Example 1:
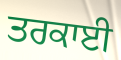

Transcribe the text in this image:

ਤਰਕਾਈ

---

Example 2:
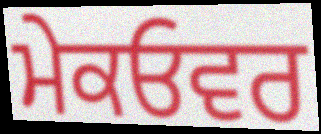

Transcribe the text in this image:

ਮੇਕਓਵਰ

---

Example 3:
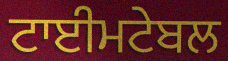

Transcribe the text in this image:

ਟਾਈਮਟੇਬਲ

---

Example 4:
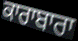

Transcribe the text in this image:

ਕਾਰਾਬਾਰਾ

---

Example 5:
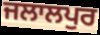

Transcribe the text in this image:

ਜਲਾਲਪੁਰ